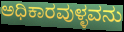
ಅಧಿಕಾರವುಳ್ಳವನು